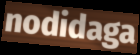
nodidaga